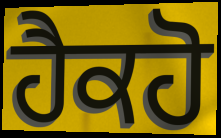
ਹੈਕਹੋ